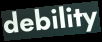
debility